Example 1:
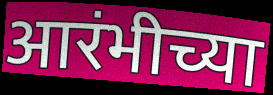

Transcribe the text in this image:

आरंभीच्या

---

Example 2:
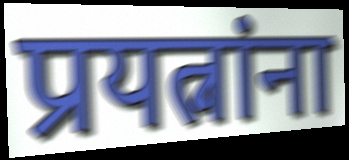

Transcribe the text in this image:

प्रयत्नांना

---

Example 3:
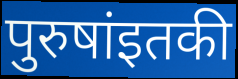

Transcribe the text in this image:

पुरुषांइतकी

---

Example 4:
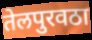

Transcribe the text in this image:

तेलपुरवठा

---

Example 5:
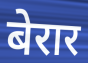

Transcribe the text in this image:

बेरार